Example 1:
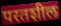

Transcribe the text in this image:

परतशील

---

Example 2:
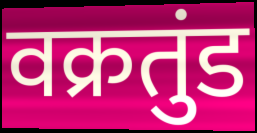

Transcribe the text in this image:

वक्रतुंड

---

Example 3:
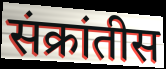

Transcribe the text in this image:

संक्रांतीस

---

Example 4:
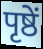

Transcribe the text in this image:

पृष्ठें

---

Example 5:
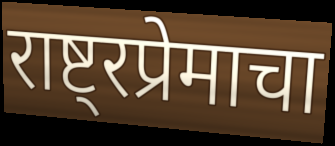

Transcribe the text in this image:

राष्ट्रप्रेमाचा